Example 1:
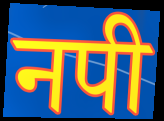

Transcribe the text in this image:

नपी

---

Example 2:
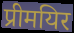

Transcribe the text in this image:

प्रीमयिर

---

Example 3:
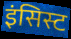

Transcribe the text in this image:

इंसिस्ट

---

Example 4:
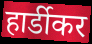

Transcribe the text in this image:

हार्डीकर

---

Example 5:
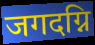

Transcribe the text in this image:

जगदग्नि